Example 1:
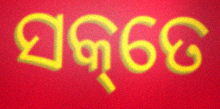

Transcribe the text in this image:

ସକ୍‌ତେ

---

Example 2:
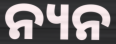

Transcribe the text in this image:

ନ୍ୟନ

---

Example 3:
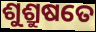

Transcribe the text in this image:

ଶୁଶ୍ରୁଷତେ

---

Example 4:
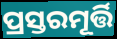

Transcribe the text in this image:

ପ୍ରସ୍ତରମୂର୍ତ୍ତି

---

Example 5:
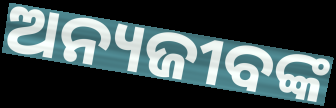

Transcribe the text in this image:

ଅନ୍ୟଜୀବଙ୍କ